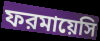
ফরমায়েসি